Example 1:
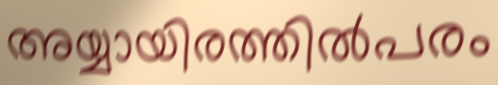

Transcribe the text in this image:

അയ്യായിരത്തിൽപരം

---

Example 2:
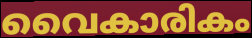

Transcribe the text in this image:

വൈകാരികം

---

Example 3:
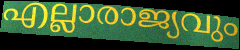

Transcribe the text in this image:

എല്ലാരാജ്യവും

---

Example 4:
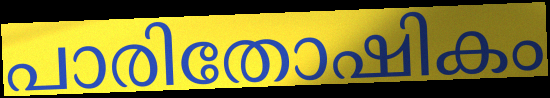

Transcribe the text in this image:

പാരിതോഷികം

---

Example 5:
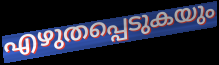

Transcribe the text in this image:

എഴുതപ്പെടുകയും